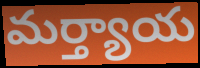
మర్త్యాయ